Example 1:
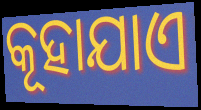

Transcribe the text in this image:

କୂହାଯାଏ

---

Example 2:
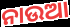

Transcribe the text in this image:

ନାଉଆ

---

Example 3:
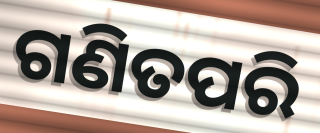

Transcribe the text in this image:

ଗଣିତପରି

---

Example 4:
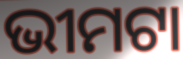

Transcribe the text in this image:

ଭୀମଟା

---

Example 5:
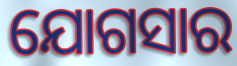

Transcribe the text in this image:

ଯୋଗସାର